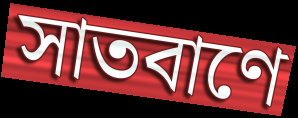
সাতবাণে